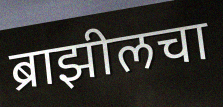
ब्राझीलचा